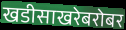
खडीसाखरेबरोबर